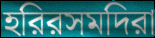
হরিরসমদিরা